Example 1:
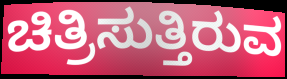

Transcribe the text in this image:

ಚಿತ್ರಿಸುತ್ತಿರುವ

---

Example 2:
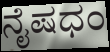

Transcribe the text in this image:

ನೈಷಧಂ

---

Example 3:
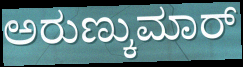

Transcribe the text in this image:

ಅರುಣ್ಕುಮಾರ್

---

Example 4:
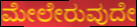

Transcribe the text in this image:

ಮೇಲೇರುವುದೇ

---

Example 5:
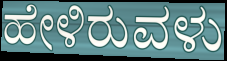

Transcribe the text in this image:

ಹೇಳಿರುವಳು